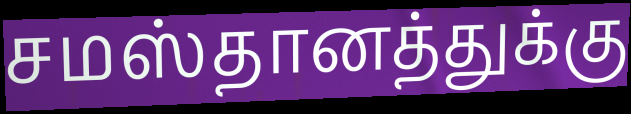
சமஸ்தானத்துக்கு